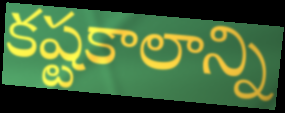
కష్టకాలాన్ని